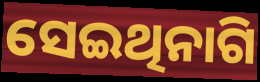
ସେଇଥିନାଗି